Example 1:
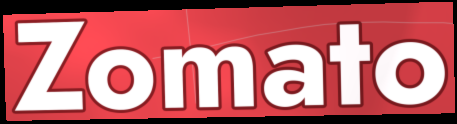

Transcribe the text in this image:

Zomato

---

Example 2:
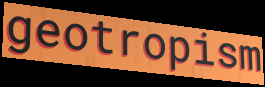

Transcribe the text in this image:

geotropism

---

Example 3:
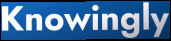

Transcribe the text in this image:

Knowingly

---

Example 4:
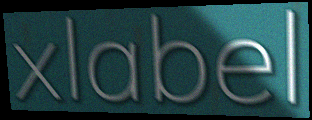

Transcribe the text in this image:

xlabel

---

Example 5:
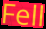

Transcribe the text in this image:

Fell